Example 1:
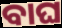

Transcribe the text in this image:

ବାଘ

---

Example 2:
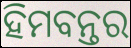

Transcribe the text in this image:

ହିମବନ୍ତର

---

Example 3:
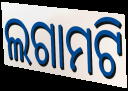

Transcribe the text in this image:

ଲଗାମଟି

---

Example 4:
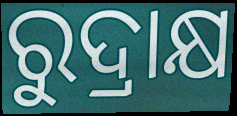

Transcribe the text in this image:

ରୁଦ୍ରାକ୍ଷ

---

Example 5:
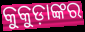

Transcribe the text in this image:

କୁକୁଡ଼ାଙ୍କର